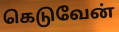
கெடுவேன்